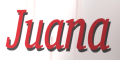
Juana